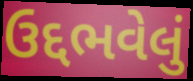
ઉદ્દભવેલું